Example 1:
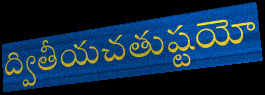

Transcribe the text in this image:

ద్వితీయచతుష్టయో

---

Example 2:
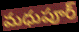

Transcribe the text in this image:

మధుపూర్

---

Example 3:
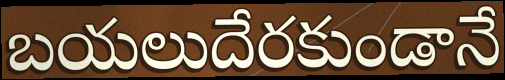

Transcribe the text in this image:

బయలుదేరకుండానే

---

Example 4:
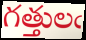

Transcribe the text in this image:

గత్తులఁ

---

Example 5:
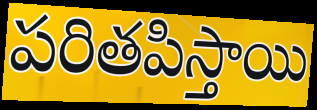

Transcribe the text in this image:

పరితపిస్తాయి